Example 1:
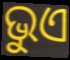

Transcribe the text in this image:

ଭୁଏ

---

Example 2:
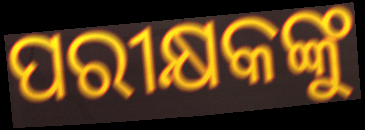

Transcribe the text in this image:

ପରୀକ୍ଷକଙ୍କୁ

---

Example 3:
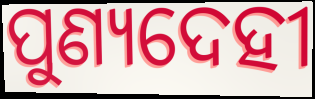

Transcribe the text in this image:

ପୁଣ୍ୟଦେହୀ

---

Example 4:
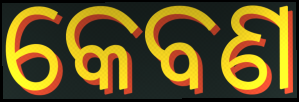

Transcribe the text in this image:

କେବଣ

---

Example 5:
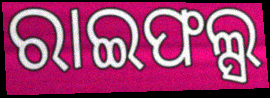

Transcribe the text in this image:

ରାଇଫଲ୍ସ